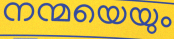
നന്മയെയും